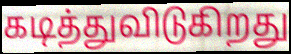
கடித்துவிடுகிறது